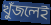
খুঁজলেই